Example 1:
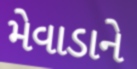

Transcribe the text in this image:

મેવાડાને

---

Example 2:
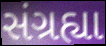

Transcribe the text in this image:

સંગ્રહ્યા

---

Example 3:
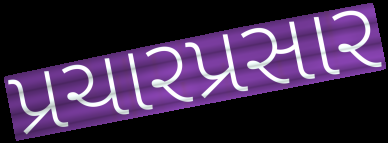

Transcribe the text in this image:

પ્રચારપ્રસાર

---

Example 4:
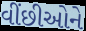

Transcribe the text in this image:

વીંછીઓને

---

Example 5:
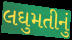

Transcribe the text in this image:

લઘુમતીનું